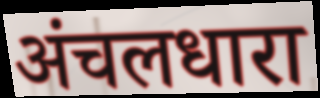
अंचलधारा